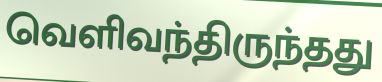
வெளிவந்திருந்தது